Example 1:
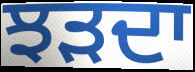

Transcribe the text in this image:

ਝੜਦਾ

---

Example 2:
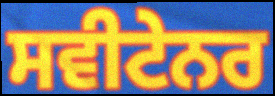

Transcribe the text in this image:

ਸਵੀਟੇਨਰ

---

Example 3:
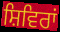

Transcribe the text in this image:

ਸ਼ਿਵਿਰਾਂ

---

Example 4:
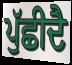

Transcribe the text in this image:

ਪੁੱਛੀਦੈ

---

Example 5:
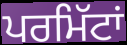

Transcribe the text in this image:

ਪਰਮਿੱਟਾਂ